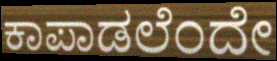
ಕಾಪಾಡಲೆಂದೇ